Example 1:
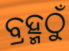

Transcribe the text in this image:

ବ୍ରହ୍ମଠୁଁ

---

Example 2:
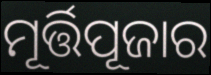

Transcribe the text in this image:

ମୂର୍ତ୍ତିପୂଜାର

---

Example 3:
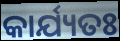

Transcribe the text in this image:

କାର୍ଯ୍ୟତଃ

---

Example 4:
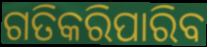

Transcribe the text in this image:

ଗତିକରିପାରିବ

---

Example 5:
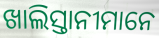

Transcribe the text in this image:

ଖାଲିସ୍ତାନୀମାନେ